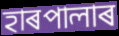
হাৰপালাৰ